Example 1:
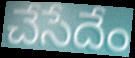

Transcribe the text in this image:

చేసేదేం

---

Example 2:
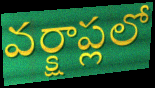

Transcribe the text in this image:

వర్క్షాప్లలో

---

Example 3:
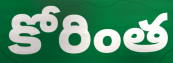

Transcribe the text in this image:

కోరింత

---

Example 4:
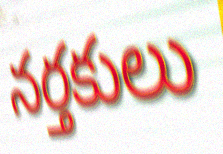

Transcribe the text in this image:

నర్తకులు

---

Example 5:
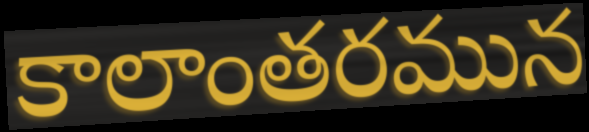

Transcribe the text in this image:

కాలాంతరమున